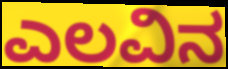
ಎಲವಿನ